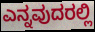
ಎನ್ನವುದರಲ್ಲಿ